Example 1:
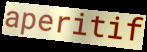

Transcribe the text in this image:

aperitif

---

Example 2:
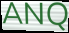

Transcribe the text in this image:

ANQ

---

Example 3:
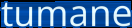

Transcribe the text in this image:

tumane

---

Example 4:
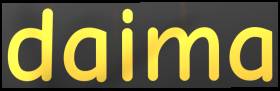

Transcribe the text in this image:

daima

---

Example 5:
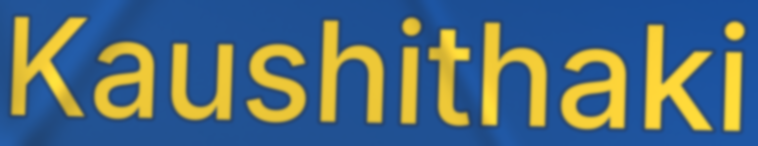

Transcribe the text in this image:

Kaushithaki